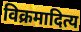
विक्रमादित्य